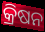
କ୍ରିଷନ